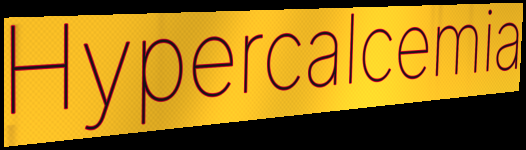
Hypercalcemia